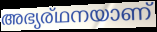
അഭ്യര്ഥനയാണ്